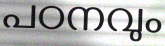
പഠനവും